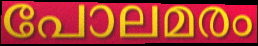
പോലമരം